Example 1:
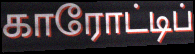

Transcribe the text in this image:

காரோட்டிப்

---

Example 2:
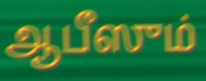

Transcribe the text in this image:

ஆபீஸும்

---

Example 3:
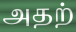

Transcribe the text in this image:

அதற்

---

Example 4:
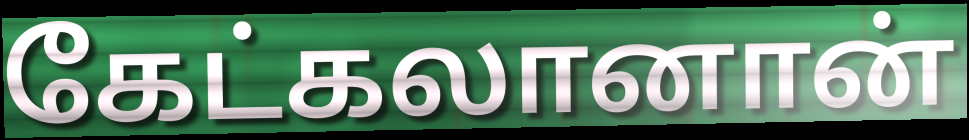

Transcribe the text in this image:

கேட்கலானான்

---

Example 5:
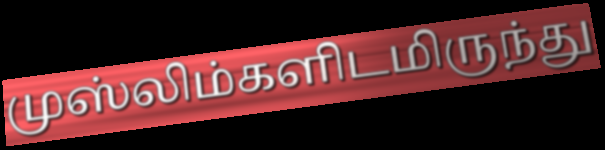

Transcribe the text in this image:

முஸ்லிம்களிடமிருந்து